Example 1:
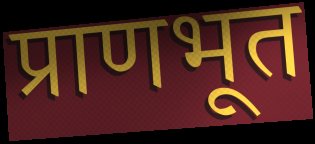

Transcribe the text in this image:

प्राणभूत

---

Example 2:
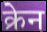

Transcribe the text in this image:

क्रेन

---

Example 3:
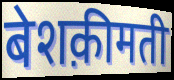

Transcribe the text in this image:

बेशक़ीमती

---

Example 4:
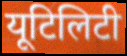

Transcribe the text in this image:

यूटिलिटी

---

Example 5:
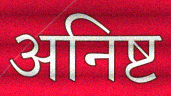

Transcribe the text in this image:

अनिष्ट